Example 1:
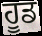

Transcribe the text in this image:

ਹੂਡ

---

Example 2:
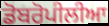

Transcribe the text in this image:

ਡੋਬਰੋਪੀਲੀਆ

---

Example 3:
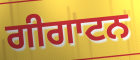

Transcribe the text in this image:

ਗੀਗਾਟਨ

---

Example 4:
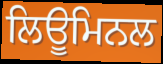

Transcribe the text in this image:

ਲਿਊਮਿਨਲ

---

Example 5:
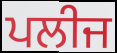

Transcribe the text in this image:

ਪਲੀਜ